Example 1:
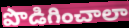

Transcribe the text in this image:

పొడిగించాలా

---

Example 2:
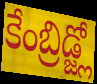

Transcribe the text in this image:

కేంబ్రిడ్జ్లో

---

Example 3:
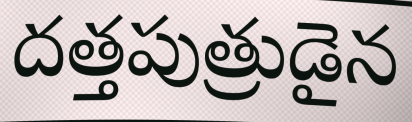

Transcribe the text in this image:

దత్తపుత్రుడైన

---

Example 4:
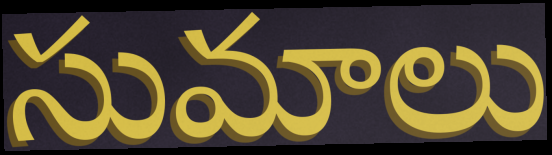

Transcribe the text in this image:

సుమాలు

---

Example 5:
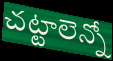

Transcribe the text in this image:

చట్టాలెన్నో